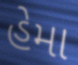
હેમા